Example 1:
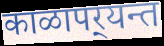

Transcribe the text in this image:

काळापर्यन्त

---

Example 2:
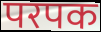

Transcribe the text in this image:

परपक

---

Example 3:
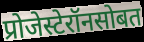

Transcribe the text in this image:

प्रोजेस्टेरॉनसोबत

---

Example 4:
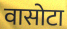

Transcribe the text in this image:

वासोटा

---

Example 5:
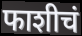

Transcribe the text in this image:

फाशीचं